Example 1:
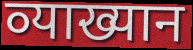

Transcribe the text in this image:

व्‍याख्‍यान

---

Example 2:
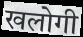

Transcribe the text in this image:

खलोगी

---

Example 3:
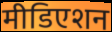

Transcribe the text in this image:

मीडिएशन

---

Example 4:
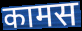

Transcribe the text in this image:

कामस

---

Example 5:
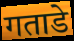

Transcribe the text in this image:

गताडे